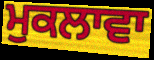
ਮੁਕਲਾਵਾ